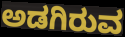
ಅಡಗಿರುವ